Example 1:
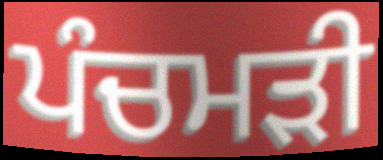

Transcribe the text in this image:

ਪੰਚਮੜੀ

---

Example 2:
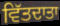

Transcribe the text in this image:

ਵਿੱਤਦਾਤਾ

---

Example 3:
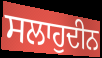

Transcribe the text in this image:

ਸਲਾਹੁਦੀਨ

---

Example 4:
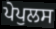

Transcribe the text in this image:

ਪੇਪੁਲਸ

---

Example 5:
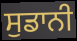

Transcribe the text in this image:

ਸੁਡਾਨੀ